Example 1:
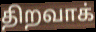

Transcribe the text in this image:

திறவாக்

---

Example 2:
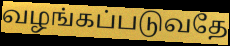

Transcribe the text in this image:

வழங்கப்படுவதே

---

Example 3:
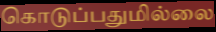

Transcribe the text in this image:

கொடுப்பதுமில்லை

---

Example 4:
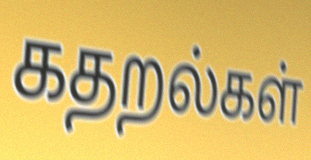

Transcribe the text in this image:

கதறல்கள்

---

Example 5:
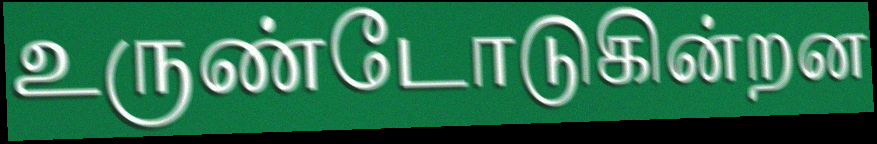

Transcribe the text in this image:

உருண்டோடுகின்றன